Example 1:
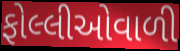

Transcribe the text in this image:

ફોલ્લીઓવાળી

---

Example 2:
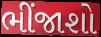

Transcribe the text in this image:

ભીંજાશો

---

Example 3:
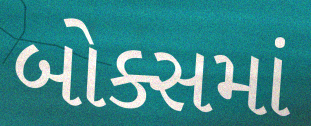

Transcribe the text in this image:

બોક્સમાં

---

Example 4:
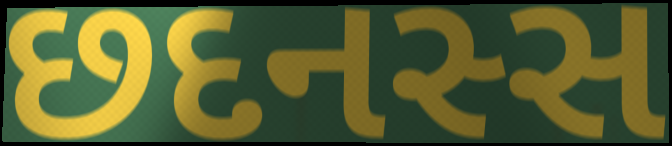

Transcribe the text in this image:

છદનસ્સ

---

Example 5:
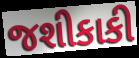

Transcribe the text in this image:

જશીકાકી